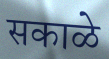
सकाळे